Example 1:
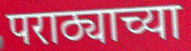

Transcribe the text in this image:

पराठ्याच्या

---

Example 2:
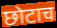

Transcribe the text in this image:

छोटाच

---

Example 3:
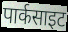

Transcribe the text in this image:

पार्कसाइट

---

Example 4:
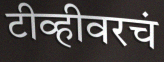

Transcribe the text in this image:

टीव्हीवरचं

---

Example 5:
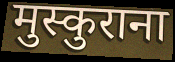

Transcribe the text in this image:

मुस्कुराना